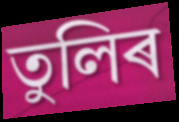
তুলিৰ